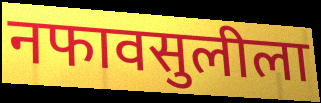
नफावसुलीला